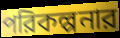
পরিকল্পনার